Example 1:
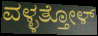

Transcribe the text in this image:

ವಳ್ಳತ್ತೋಳ್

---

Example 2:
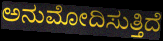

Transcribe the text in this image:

ಅನುಮೋದಿಸುತ್ತಿದೆ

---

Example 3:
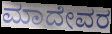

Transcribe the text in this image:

ಮಾದೇವರ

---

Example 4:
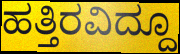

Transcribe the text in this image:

ಹತ್ತಿರವಿದ್ದೂ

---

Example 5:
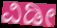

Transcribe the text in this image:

ವಿಡೀ